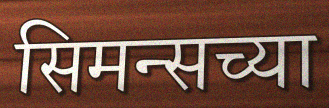
सिमन्सच्या